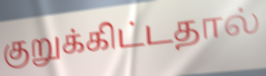
குறுக்கிட்டதால்